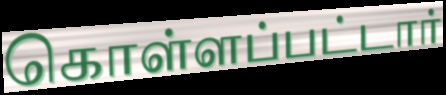
கொள்ளப்பட்டார்